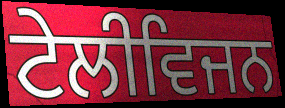
ਟੇਲੀਵਿਜਨ